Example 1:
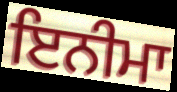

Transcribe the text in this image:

ਇਨੀਮਾ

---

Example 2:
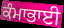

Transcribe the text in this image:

ਕੰਮਾਭਾਈ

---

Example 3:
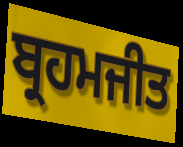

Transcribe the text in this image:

ਬ੍ਰਹਮਜੀਤ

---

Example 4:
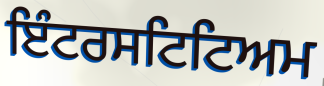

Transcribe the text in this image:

ਇੰਟਰਸਟਿਟਿਅਮ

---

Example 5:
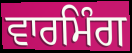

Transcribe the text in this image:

ਵਾਰਮਿੰਗ